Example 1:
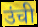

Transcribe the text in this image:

उंची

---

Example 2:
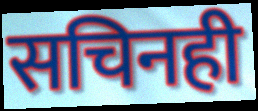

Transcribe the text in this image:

सचिनही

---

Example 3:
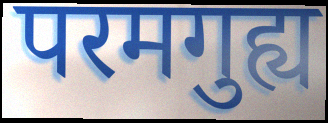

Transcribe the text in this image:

परमगुह्य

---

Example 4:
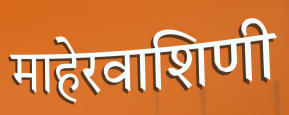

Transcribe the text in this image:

माहेरवाशिणी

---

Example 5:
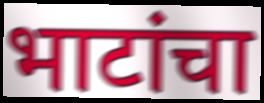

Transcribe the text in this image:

भाटांचा